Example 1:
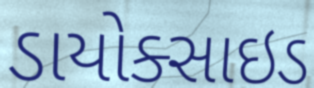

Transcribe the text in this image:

ડાયોક્સાઇડ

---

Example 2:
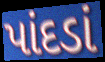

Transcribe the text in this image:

પાંદડાં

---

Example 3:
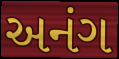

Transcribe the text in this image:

અનંગ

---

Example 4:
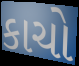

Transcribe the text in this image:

કાચો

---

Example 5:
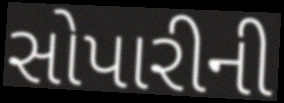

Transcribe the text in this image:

સોપારીની